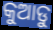
କୁଆଡୁ